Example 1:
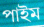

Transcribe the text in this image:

পাইম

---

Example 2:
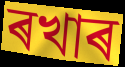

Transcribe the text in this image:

ৰখাৰ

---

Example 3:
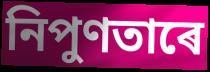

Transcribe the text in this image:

নিপুণতাৰে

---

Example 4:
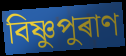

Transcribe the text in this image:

বিষ্ণুপুৰাণ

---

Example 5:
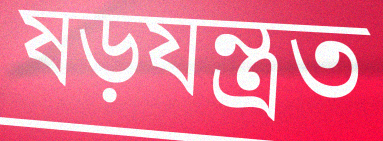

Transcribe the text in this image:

ষড়যন্ত্ৰত